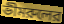
ভীমরুলের